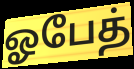
ஓபேத்